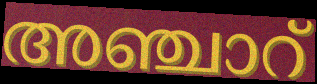
അഞ്ചാറ്